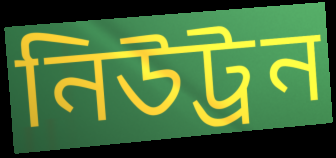
নিউট্রন